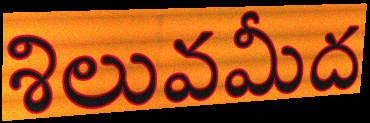
శిలువమీద